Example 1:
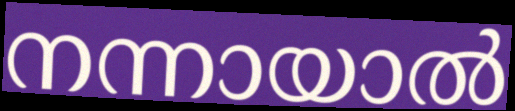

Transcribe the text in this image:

നന്നായാൽ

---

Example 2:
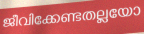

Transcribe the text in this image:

ജീവിക്കേണ്ടതല്ലയോ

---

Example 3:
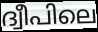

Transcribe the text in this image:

ദ്വീപിലെ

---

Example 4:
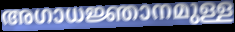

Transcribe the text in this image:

അഗാധജ്ഞാനമുള്ള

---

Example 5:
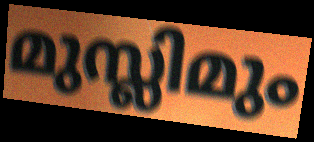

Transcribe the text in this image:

മുസ്ലിമും